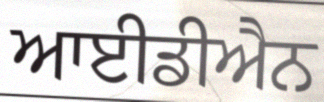
ਆਈਡੀਐਨ